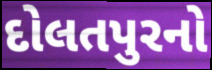
દોલતપુરનો